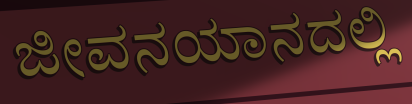
ಜೀವನಯಾನದಲ್ಲಿ